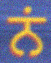
ਨਂ